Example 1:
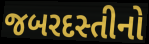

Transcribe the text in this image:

જબરદસ્તીનો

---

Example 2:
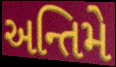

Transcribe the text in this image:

અન્તિમે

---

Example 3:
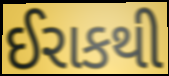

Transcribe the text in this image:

ઈરાકથી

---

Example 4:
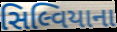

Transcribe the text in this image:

સિલ્વિયાના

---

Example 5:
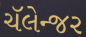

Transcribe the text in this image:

ચૅલેન્જર